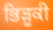
ਭਿੜੂਕੀ